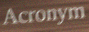
Acronym